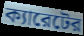
ক্যারেটের